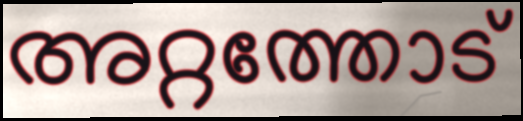
അറ്റത്തോട്